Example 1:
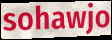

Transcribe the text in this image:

sohawjo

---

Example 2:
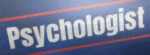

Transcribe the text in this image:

Psychologist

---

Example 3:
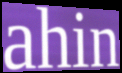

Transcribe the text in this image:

ahin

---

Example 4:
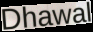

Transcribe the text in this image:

Dhawal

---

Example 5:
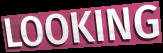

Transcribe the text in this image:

LOOKING